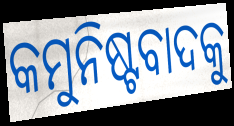
କମୁନିଷ୍ଟବାଦକୁ